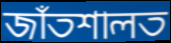
জাঁতশালত